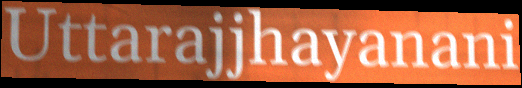
Uttarajjhayanani